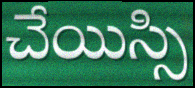
చేయిస్సి